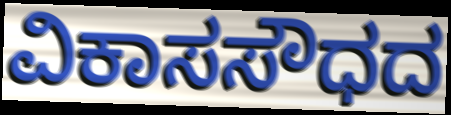
ವಿಕಾಸಸೌಧದ